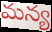
మన్య